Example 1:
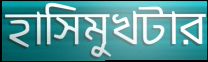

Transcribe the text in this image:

হাসিমুখটার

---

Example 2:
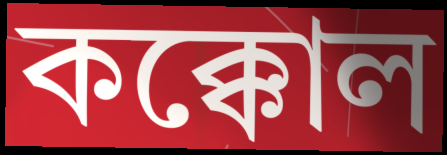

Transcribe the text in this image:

কক্কোল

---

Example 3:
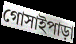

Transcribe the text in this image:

গোসাইপাড়া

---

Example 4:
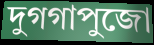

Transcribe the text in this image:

দুগগাপুজো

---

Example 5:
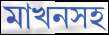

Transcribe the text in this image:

মাখনসহ